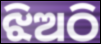
ଝିଅଠି